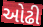
ઓઢી